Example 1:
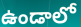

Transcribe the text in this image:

ఉండాలో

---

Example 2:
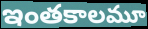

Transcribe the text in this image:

ఇంతకాలమూ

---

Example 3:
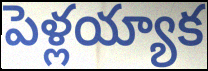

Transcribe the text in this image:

పెళ్లయ్యాక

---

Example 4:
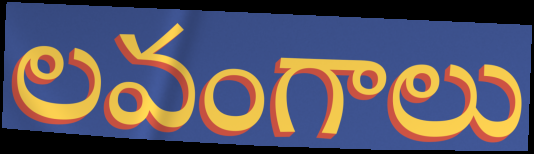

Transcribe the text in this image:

లవంగాలు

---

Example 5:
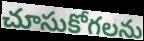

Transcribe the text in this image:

చూసుకోగలను